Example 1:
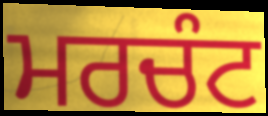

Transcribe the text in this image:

ਮਰਚੰਟ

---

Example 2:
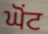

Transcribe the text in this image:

ਘੋਂਟ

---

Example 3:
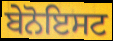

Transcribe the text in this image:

ਬੇਨੋਇਸਟ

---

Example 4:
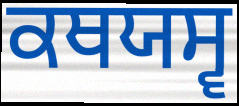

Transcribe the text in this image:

ਕਥਯਸ੍ਵ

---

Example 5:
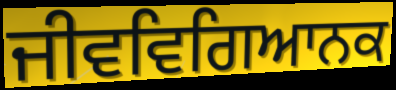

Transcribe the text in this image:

ਜੀਵਵਿਗਿਆਨਕ